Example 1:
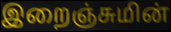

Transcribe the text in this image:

இறைஞ்சுமின்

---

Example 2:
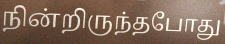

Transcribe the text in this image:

நின்றிருந்தபோது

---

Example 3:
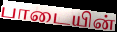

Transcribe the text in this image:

பாடையின்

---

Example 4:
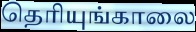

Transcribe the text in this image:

தெரியுங்காலை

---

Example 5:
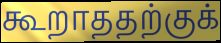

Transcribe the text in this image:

கூறாததற்குக்